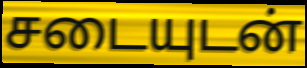
சடையுடன்